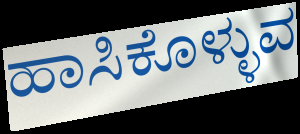
ಹಾಸಿಕೊಳ್ಳುವ